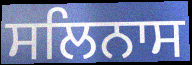
ਸਲਿਨਾਸ